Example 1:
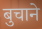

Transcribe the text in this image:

बुचाने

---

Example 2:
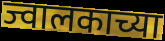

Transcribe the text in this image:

ज्वालकाच्या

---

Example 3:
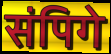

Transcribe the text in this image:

संपिगे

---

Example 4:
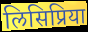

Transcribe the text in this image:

लिसिप्रिया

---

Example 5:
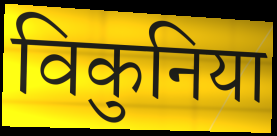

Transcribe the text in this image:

विकुनिया